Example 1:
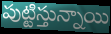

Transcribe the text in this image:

పుట్టిస్తున్నాయి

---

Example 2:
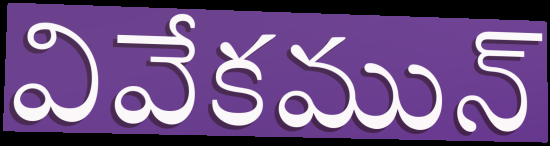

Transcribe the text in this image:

వివేకమున్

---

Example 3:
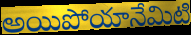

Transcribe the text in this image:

అయిపోయానేమిటి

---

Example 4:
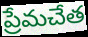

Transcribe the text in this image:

ప్రేమచేత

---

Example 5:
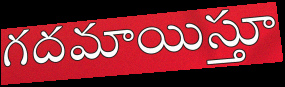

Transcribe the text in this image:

గదమాయిస్తూ